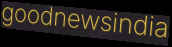
goodnewsindia